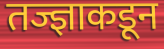
तज्ज्ञाकडून